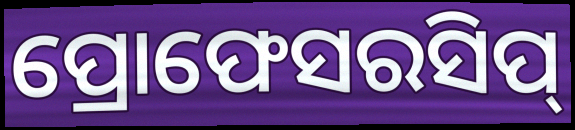
ପ୍ରୋଫେସରସିପ୍